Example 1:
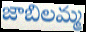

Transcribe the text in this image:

జాబిలమ్మ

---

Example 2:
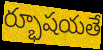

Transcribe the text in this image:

ర్భూషయతే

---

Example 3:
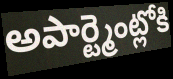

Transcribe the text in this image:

అపార్ట్మెంట్లోకి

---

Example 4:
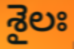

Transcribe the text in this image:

శైలః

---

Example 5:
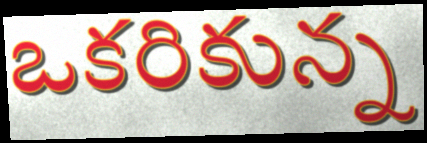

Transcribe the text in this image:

ఒకరికున్న